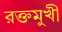
রক্তমুখী